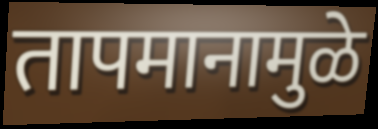
तापमानामुळे